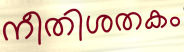
നീതിശതകം